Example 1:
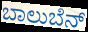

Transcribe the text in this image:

ಬಾಲುಬೆನ್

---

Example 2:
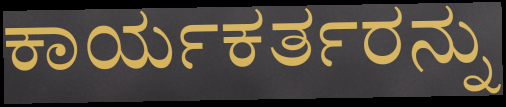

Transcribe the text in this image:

ಕಾರ್ಯಕರ್ತರನ್ನು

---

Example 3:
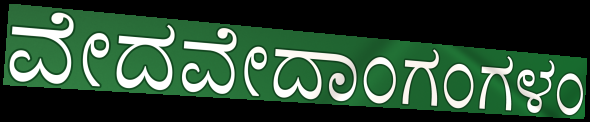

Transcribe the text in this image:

ವೇದವೇದಾಂಗಂಗಳಂ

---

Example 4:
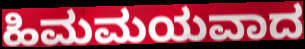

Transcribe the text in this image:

ಹಿಮಮಯವಾದ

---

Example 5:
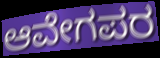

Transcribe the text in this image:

ಆವೇಗಪರ